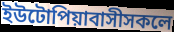
ইউটোপিয়াবাসীসকলে